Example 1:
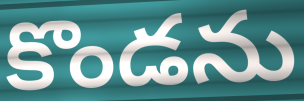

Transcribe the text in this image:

కొండను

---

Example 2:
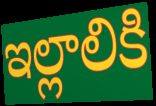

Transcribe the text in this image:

ఇల్లాలికి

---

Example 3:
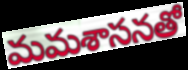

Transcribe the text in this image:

మమశాసనతో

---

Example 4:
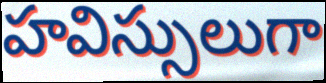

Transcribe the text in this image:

హవిస్సులుగా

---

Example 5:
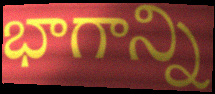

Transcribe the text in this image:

భాగాన్ని